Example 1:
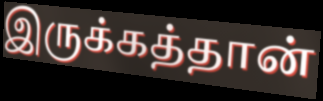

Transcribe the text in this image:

இருக்கத்தான்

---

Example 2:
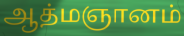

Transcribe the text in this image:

ஆத்மஞானம்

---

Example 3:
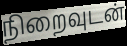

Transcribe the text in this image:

நிறைவுடன்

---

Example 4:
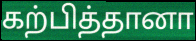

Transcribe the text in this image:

கற்பித்தானா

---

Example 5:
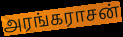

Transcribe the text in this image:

அரங்கராசன்